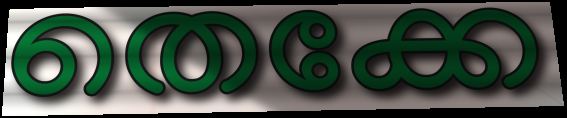
തെക്കേ